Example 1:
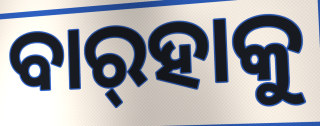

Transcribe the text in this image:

ବାର୍‍ହାକୁ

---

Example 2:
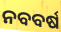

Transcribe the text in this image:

ନବବର୍ଷ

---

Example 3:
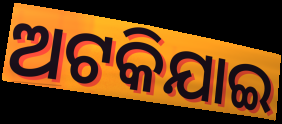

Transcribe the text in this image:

ଅଟକିଯାଇ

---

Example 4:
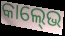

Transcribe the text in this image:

କାଲ୍‍ଭେ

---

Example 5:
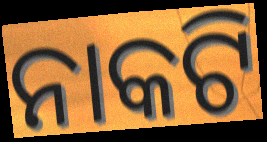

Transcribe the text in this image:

ନାକଟି